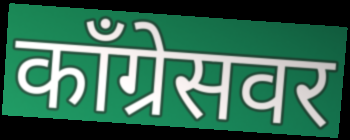
काँग्रेसवर